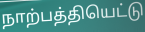
நாற்பத்தியெட்டு